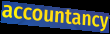
accountancy